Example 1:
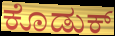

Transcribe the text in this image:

ಕೊಡುಕ್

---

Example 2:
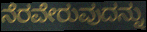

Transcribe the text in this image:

ನೆರವೇರುವುದನ್ನು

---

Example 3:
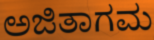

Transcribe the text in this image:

ಅಜಿತಾಗಮ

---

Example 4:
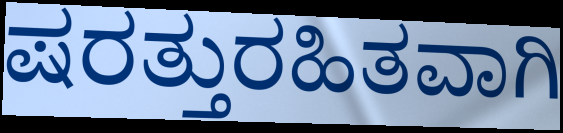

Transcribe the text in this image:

ಷರತ್ತುರಹಿತವಾಗಿ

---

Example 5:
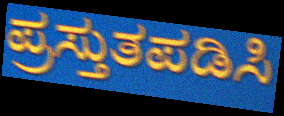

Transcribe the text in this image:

ಪ್ರಸ್ತುತಪಡಿಸಿ